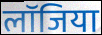
लॉजिया